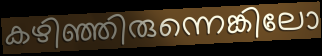
കഴിഞ്ഞിരുന്നെങ്കിലോ